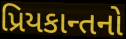
પ્રિયકાન્તનો